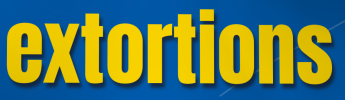
extortions